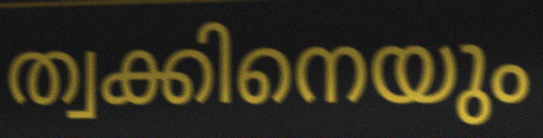
ത്വക്കിനെയും